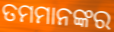
ତମମାନଙ୍କର